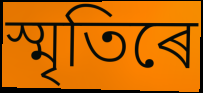
স্মৃতিৰে